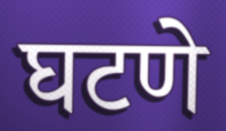
घटणे